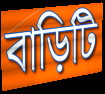
বাড়িটি